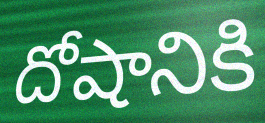
దోషానికి